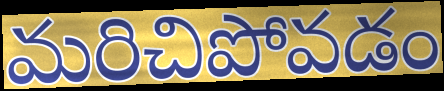
మరిచిపోవడం